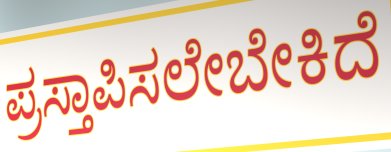
ಪ್ರಸ್ತಾಪಿಸಲೇಬೇಕಿದೆ